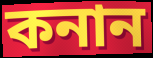
কনান